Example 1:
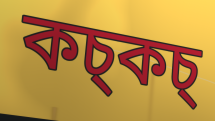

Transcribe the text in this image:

কচ্কচ্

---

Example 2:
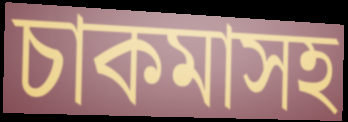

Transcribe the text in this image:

চাকমাসহ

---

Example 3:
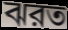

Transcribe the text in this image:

ঝরত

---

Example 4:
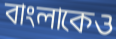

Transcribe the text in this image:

বাংলাকেও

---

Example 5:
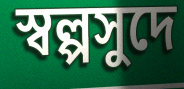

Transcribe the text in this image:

স্বল্পসুদে